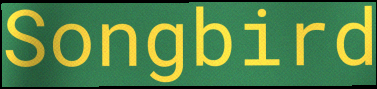
Songbird